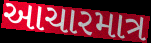
આચારમાત્ર